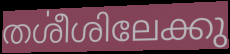
തൎശീശിലേക്കു